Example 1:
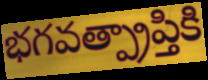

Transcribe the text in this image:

భగవత్ప్రాప్తికి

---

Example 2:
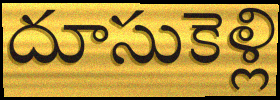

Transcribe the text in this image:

దూసుకెళ్లి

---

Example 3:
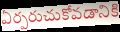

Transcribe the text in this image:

ఏర్పరుచుకోవడానికి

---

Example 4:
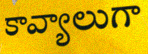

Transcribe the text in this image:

కావ్యాలుగా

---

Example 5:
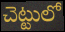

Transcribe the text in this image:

చెట్టులో